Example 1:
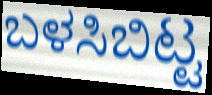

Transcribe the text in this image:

ಬಳಸಿಬಿಟ್ಟ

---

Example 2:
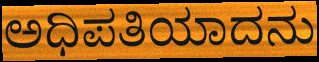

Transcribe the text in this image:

ಅಧಿಪತಿಯಾದನು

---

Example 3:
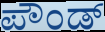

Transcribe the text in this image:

ಪೌಂಡ್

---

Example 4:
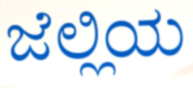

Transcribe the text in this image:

ಜೆಲ್ಲಿಯ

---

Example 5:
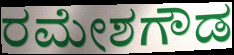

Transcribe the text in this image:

ರಮೇಶಗೌಡ